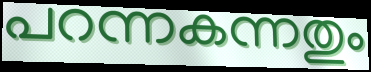
പറന്നകന്നതും